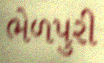
ભેળપુરી